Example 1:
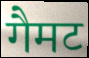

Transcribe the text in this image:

गैमट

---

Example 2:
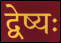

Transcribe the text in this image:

द्वेष्यः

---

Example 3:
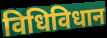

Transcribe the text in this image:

विधिविधान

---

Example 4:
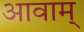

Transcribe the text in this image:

आवाम्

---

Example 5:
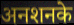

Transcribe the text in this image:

अनशनके